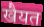
खैयत